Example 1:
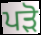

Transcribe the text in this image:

ਪੜੋ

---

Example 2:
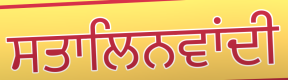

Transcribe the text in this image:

ਸਤਾਲਿਨਵਾਂਦੀ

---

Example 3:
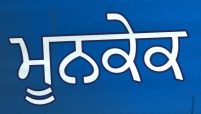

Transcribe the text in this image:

ਮੂਨਕੇਕ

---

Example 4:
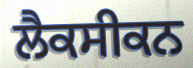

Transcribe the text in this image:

ਲੈਕਸੀਕਨ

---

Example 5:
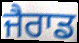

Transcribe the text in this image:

ਜੈਰਾਡ